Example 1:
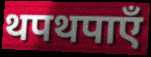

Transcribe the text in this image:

थपथपाएँ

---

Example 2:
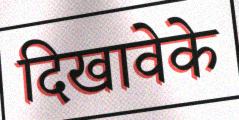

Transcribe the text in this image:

दिखावेके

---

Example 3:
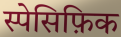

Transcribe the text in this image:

स्पेसिफ़िक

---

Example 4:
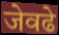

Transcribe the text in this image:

जेवढे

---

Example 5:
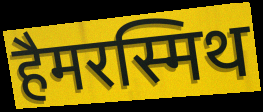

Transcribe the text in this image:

हैमरस्मिथ